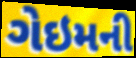
ગેઇમની